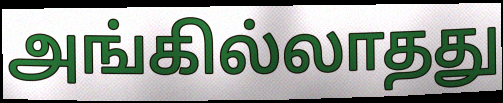
அங்கில்லாதது